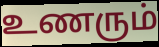
உணரும்